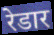
रेडार